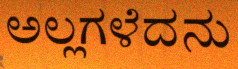
ಅಲ್ಲಗಳೆದನು